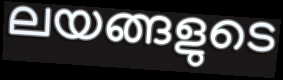
ലയങ്ങളുടെ